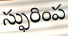
స్ఫురింప